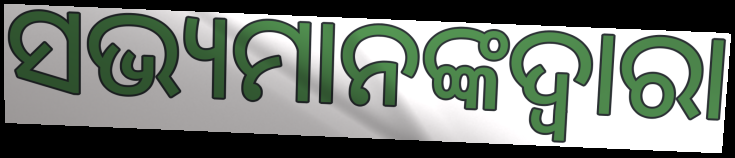
ସଭ୍ୟମାନଙ୍କଦ୍ୱାରା